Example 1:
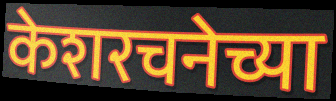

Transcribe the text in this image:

केशरचनेच्या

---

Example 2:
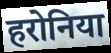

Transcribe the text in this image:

हरोनिया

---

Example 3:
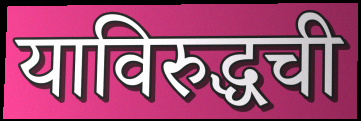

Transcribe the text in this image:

याविरुद्धची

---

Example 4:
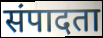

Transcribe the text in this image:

संपादता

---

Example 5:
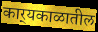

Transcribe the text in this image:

कार्यकाळातील